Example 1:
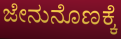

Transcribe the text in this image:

ಜೇನುನೊಣಕ್ಕೆ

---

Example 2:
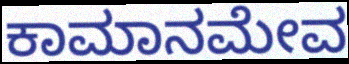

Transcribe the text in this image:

ಕಾಮಾನಮೇವ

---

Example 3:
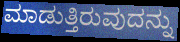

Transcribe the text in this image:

ಮಾಡುತ್ತಿರುವುದನ್ನು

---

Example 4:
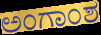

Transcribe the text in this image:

ಅಂಗಾಂಶ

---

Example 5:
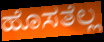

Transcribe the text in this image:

ಹೊಸತೆಲ್ಲ